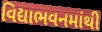
વિદ્યાભવનમાંથી